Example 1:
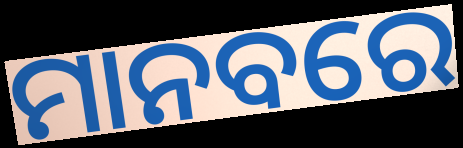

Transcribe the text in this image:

ମାନବରେ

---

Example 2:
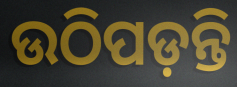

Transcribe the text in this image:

ଉଠିପଡ଼ନ୍ତି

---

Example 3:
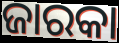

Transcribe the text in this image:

ଜାରକା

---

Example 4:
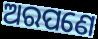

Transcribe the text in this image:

ଅରପଣେ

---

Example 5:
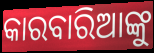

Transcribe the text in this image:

କାରବାରିଆଙ୍କୁ